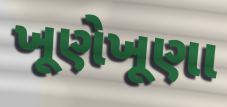
ખૂણેખૂણા